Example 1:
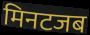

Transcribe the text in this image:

मिनटजब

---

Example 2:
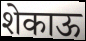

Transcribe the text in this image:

शेकाऊ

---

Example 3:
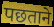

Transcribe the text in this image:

पछताने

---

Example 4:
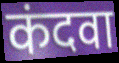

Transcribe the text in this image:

कंदवा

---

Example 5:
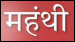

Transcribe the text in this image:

महंथी